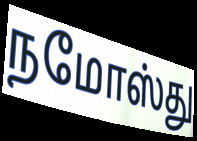
நமோஸ்து